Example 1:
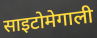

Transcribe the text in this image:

साइटोमेगाली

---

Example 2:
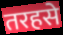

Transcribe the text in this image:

तरहसे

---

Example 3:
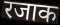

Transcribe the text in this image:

रजाक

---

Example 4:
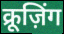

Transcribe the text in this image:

क्रूज़िंग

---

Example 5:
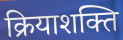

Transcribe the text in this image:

क्रियाशक्ति